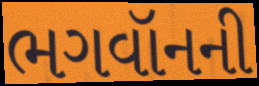
ભગવૉનની